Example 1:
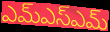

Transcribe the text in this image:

ఎమ్ఎస్ఎమ్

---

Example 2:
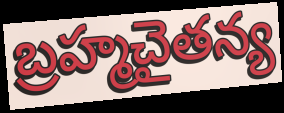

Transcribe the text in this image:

బ్రహ్మచైతన్య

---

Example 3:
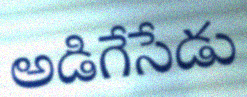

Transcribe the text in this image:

అడిగేసేడు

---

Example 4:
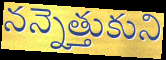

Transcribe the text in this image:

నన్నెత్తుకుని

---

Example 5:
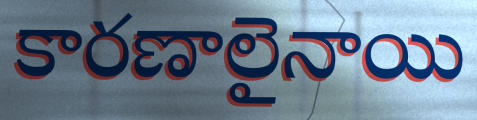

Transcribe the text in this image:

కారణాలైనాయి